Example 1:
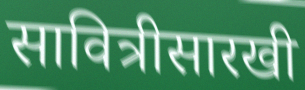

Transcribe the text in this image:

सावित्रीसारखी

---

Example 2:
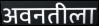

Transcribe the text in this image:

अवनतीला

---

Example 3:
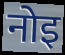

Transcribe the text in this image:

नोइ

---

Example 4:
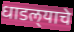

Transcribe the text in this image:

धाडल्याचे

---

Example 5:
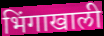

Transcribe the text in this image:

भिंगाखाली